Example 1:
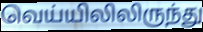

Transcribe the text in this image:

வெய்யிலிலிருந்து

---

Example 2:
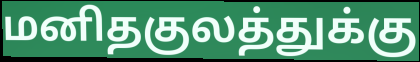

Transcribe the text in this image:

மனிதகுலத்துக்கு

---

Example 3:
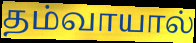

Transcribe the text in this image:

தம்வாயால்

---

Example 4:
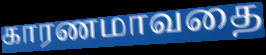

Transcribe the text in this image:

காரணமாவதை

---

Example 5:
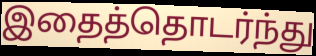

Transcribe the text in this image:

இதைத்தொடர்ந்து